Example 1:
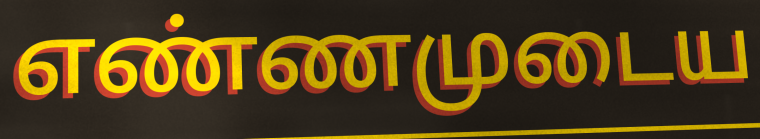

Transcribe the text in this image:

எண்ணமுடைய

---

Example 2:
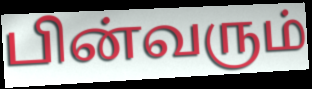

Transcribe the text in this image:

பின்வரும்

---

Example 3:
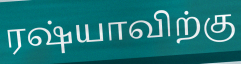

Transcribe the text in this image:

ரஷ்யாவிற்கு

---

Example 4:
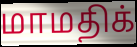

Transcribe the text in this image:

மாமதிக்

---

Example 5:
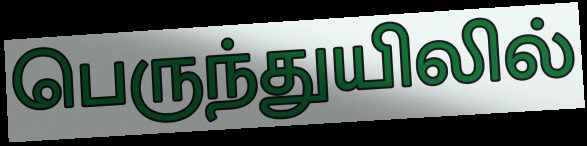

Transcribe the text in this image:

பெருந்துயிலில்